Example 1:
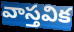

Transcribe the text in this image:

వాస్తవిక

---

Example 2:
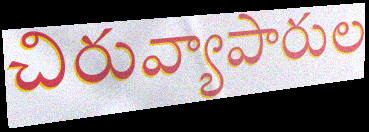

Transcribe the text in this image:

చిరువ్యాపారుల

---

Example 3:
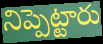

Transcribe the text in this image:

నిప్పెట్టారు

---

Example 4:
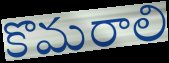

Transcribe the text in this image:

కొమరాలి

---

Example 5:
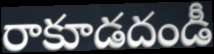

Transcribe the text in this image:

రాకూడదండీ